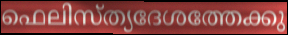
ഫെലിസ്ത്യദേശത്തേക്കു